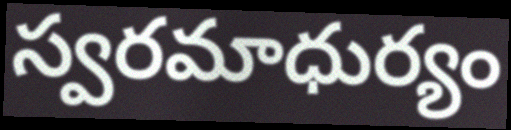
స్వరమాధుర్యం